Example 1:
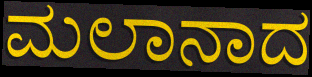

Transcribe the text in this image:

ಮಲಾನಾದ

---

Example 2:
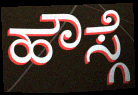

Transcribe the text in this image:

ಹೌಸ್ಗೆ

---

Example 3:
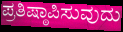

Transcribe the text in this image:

ಪ್ರತಿಷ್ಠಾಪಿಸುವುದು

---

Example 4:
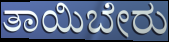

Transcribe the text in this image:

ತಾಯಿಬೇರು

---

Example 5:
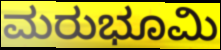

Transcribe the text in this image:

ಮರುಭೂಮಿ